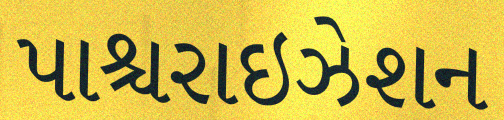
પાશ્ચરાઇઝેશન